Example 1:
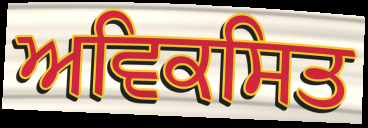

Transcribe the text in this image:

ਅਵਿਕਸਿਤ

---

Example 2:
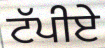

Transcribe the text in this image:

ਟੱਪੀਏ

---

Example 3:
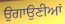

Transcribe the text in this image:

ਉਗਾਉਣੀਆਂ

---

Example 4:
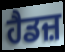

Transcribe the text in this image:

ਹੈਡਜ਼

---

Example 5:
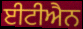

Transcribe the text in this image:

ਈਟੀਐਨ